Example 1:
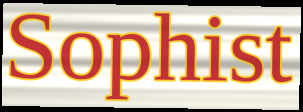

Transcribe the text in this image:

Sophist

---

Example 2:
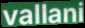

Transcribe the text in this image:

vallani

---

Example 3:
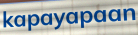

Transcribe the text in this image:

kapayapaan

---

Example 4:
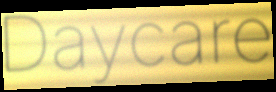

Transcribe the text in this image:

Daycare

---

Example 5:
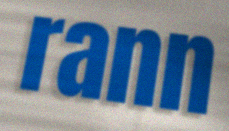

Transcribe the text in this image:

rann